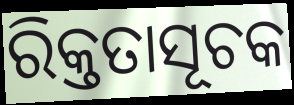
ରିକ୍ତତାସୂଚକ